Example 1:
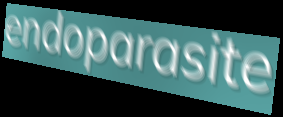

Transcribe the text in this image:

endoparasite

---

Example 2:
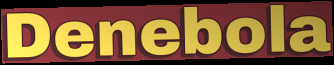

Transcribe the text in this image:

Denebola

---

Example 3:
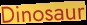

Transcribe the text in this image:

Dinosaur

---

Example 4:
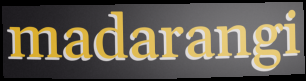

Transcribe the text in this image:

madarangi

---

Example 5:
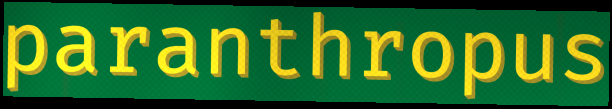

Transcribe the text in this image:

paranthropus